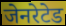
जेनरेटेड